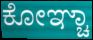
ಕೋಞ್ಚಾ